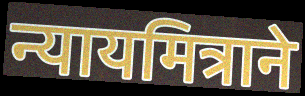
न्यायमित्राने